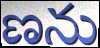
ణను